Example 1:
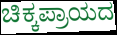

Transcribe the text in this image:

ಚಿಕ್ಕಪ್ರಾಯದ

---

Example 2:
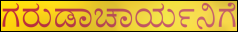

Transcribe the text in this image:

ಗರುಡಾಚಾರ್ಯನಿಗೆ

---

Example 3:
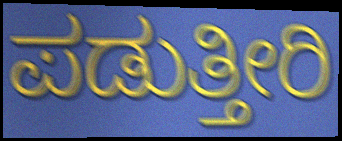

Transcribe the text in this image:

ಪಡುತ್ತೀರಿ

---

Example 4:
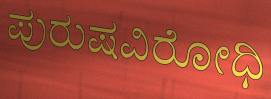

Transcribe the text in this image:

ಪುರುಷವಿರೋಧಿ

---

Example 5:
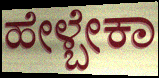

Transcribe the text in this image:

ಹೇಳ್ಬೇಕಾ